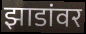
झाडांवर